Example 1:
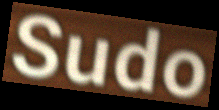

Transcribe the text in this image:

Sudo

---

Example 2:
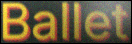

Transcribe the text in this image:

Ballet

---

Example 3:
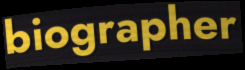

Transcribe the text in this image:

biographer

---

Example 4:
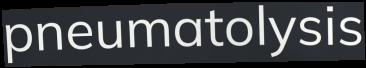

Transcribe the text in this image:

pneumatolysis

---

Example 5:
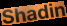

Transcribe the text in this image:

Shadin